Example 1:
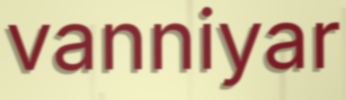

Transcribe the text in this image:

vanniyar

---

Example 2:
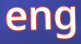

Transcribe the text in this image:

eng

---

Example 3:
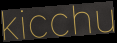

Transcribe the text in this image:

kicchu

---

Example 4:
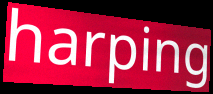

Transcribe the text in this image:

harping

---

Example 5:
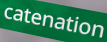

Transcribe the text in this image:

catenation